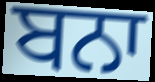
ਬਨਾ